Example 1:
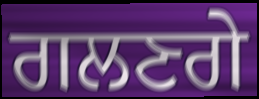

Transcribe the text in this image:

ਗਲਣਗੇ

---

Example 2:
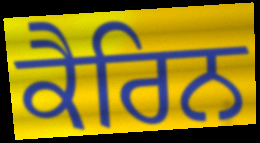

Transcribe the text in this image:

ਕੈਰਿਨ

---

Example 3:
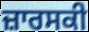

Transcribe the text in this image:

ਜ਼ਾਰਸਕੀ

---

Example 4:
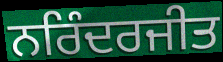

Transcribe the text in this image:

ਨਰਿੰਦਰਜੀਤ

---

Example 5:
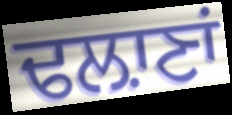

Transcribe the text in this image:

ਢਲ਼ਾਣਾਂ